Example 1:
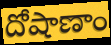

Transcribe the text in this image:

దోషాణాం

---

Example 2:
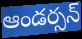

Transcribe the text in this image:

ఆండర్సన్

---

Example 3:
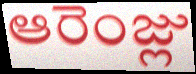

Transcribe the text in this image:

ఆరెంజ్లు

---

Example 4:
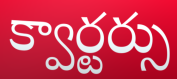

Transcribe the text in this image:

క్వార్టర్సు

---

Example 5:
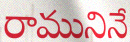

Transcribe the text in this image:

రామునినే